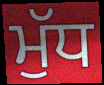
ਮੁੱਧ